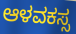
ಆಳವಕಸ್ಸ